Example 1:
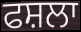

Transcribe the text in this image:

ਫਸ਼ਲਾ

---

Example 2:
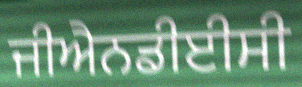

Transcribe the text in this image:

ਜੀਐਨਡੀਈਸੀ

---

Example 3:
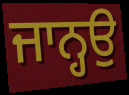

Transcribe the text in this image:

ਜਾਨ੍ਹਉ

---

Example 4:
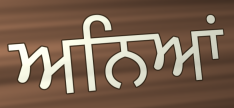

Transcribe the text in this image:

ਅਨਿਆਂ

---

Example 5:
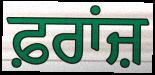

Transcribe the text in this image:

ਫ਼ਰਾਂਜ਼